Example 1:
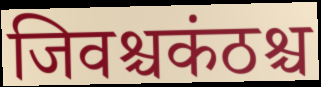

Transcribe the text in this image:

जिवश्चकंठश्च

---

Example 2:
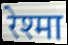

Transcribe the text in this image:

रेश्मा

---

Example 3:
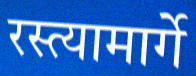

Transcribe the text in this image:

रस्त्यामार्गे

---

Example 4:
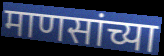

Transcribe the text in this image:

माणसांच्या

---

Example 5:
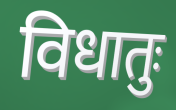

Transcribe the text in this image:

विधातुः